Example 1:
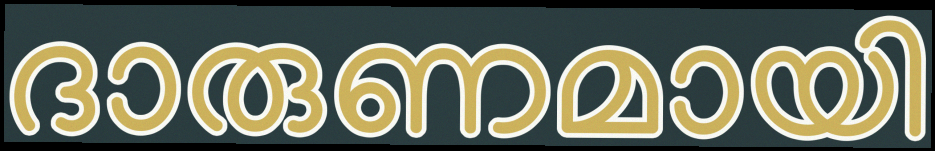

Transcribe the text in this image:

ദാരുണമായി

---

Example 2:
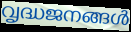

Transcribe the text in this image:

വൃദ്ധജനങ്ങൾ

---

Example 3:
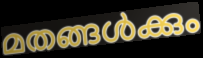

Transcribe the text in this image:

മതങ്ങൾക്കും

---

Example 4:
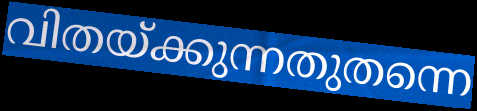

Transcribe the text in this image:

വിതയ്ക്കുന്നതുതന്നെ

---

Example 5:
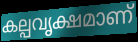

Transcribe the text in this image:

കല്പവൃക്ഷമാണ്